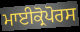
ਮਾਈਕ੍ਰੋਪੋਰਸ